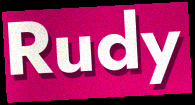
Rudy